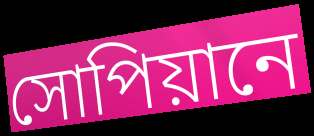
সোপিয়ানে